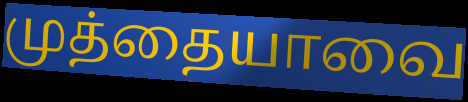
முத்தையாவை